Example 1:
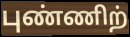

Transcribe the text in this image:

புண்ணிற்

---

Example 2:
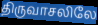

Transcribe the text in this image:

திருவாசலிலே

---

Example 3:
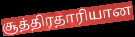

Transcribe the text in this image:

சூத்திரதாரியான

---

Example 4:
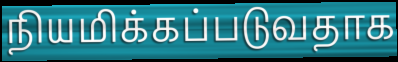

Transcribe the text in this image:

நியமிக்கப்படுவதாக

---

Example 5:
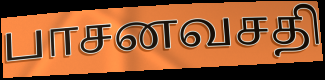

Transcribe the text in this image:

பாசனவசதி